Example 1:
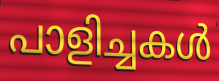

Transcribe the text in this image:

പാളിച്ചകൾ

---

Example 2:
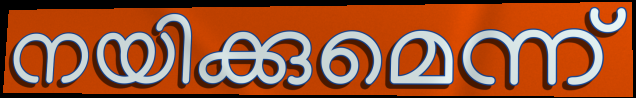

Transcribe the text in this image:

നയിക്കുമെന്ന്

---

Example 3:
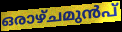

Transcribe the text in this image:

ഒരാഴ്ചമുൻപ്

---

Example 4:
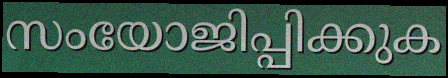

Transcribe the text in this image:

സംയോജിപ്പിക്കുക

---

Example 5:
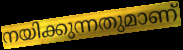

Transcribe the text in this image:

നയിക്കുന്നതുമാണ്